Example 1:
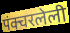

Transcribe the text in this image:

पंक्चरलेली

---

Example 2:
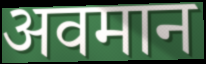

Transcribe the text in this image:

अवमान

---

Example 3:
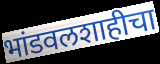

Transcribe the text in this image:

भांडवलशाहीचा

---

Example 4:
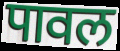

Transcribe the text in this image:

पावल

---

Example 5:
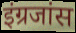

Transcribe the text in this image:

इंग्रजांस